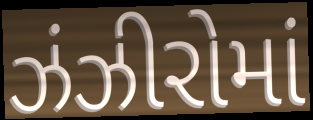
ઝંઝીરોમાં